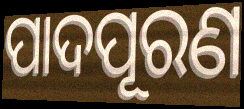
ପାଦପୂରଣ